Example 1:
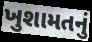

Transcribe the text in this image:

ખુશામતનું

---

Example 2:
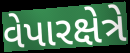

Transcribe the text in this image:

વેપારક્ષેત્રે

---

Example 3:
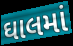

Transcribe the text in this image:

ઘાલમાં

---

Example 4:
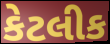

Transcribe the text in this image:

કેટલીક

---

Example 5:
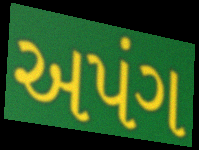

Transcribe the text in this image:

અપંગ